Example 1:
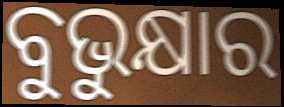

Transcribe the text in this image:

ବୁଭୁକ୍ଷାର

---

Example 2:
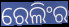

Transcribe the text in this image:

ରେଲିଂର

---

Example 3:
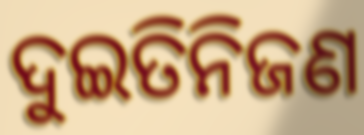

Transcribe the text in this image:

ଦୁଇତିନିଜଣ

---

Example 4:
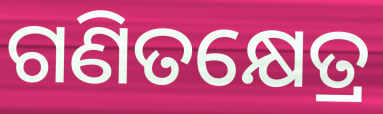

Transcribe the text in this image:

ଗଣିତକ୍ଷେତ୍ର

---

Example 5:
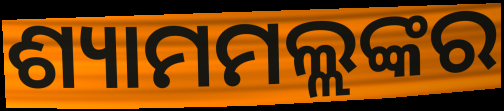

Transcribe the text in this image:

ଶ୍ୟାମମଲ୍ଲଙ୍କର